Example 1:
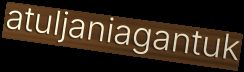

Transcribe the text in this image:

atuljaniagantuk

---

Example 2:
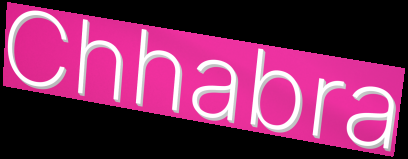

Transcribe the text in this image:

Chhabra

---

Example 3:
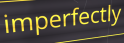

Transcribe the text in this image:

imperfectly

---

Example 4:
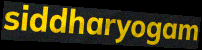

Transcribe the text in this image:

siddharyogam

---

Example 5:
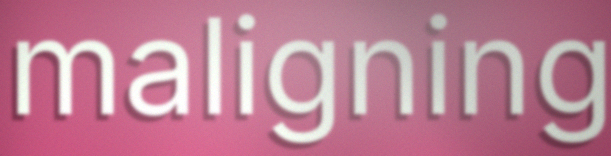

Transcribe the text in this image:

maligning